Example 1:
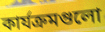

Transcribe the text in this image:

কার্যক্রমগুলো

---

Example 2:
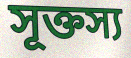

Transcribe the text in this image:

সূক্তস্য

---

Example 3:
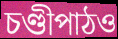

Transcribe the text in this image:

চণ্ডীপাঠও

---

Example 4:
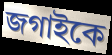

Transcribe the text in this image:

জগাইকে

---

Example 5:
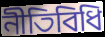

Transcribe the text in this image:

নীতিবিধি